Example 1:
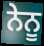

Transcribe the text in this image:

ਨੇਨੂ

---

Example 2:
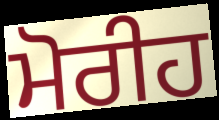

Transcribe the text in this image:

ਮੋਰੀਹ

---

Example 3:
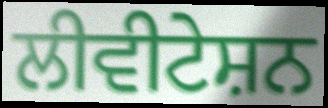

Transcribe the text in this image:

ਲੀਵੀਟੇਸ਼ਨ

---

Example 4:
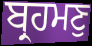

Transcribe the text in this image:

ਬ੍ਰਹਮਣੁ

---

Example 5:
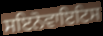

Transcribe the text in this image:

ਸਇਨੋਵਾਇਟਿਸ